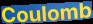
Coulomb